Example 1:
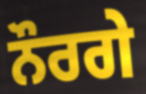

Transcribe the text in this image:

ਨੌਰਗੇ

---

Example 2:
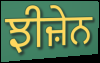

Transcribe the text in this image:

ਝੀਜ਼ੇਨ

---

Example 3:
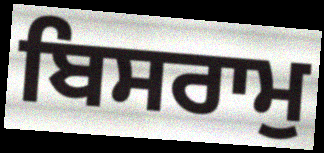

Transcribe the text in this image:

ਬਿਸਰਾਮੁ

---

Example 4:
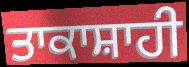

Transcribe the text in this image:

ਤਾਕਾਸ਼ਾਹੀ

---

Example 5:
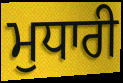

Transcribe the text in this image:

ਮੁਧਾਰੀ